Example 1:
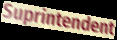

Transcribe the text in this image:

Suprintendent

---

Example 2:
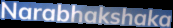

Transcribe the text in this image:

Narabhakshaka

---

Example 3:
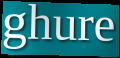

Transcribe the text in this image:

ghure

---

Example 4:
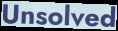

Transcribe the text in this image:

Unsolved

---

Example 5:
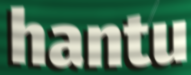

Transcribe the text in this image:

hantu